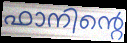
ഫാനിന്റെ